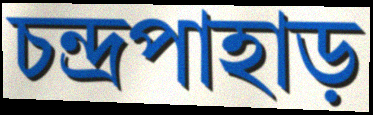
চন্দ্রপাহাড়